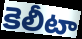
కెలీటా